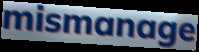
mismanage